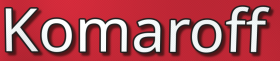
Komaroff